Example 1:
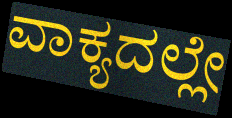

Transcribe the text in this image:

ವಾಕ್ಯದಲ್ಲೇ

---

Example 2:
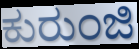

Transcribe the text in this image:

ಕುರುಂಜಿ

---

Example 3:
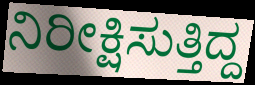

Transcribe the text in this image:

ನಿರೀಕ್ಷಿಸುತ್ತಿದ್ದ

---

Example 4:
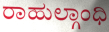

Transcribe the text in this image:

ರಾಹುಲ್ಗಾಂಧಿ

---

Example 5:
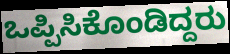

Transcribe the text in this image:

ಒಪ್ಪಿಸಿಕೊಂಡಿದ್ದರು